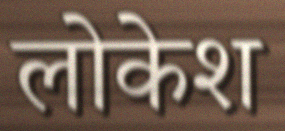
लोकेश